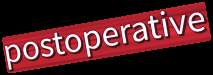
postoperative